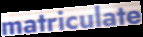
matriculate